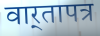
वार्तापत्र